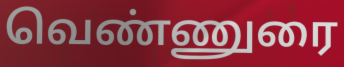
வெண்ணுரை